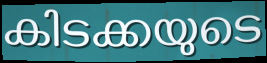
കിടക്കയുടെ